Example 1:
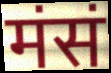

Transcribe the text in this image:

मंसं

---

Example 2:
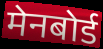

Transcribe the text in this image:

मेनबोर्ड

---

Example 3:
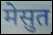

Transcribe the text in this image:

मेसुत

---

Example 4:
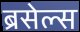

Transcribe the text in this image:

ब्रसेल्स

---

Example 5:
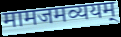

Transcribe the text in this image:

मामजमव्ययम्